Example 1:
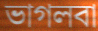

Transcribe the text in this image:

ভাগলবা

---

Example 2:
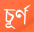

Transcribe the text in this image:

চূর্ণ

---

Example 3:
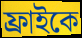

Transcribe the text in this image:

ফ্রাইকে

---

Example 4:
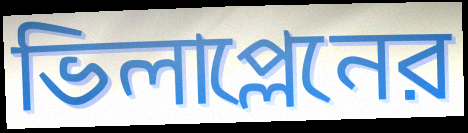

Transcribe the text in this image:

ভিলাপ্লেনের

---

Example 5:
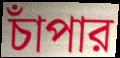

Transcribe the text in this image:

চাঁপার